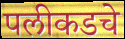
पलीकडचे